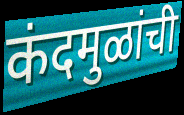
कंदमुळांची